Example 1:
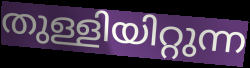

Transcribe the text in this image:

തുള്ളിയിറ്റുന്ന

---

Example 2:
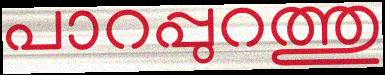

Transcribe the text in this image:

പാറപ്പുറത്തു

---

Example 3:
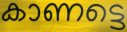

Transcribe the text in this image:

കാണട്ടെ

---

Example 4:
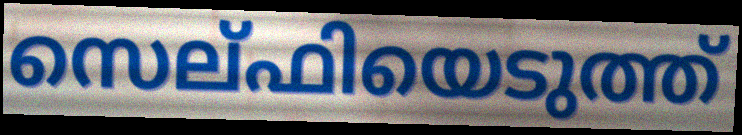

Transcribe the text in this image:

സെല്ഫിയെടുത്ത്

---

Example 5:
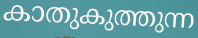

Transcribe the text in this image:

കാതുകുത്തുന്ന